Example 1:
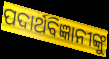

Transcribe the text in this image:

ପଦାର୍ଥବିଜ୍ଞାନୀଙ୍କୁ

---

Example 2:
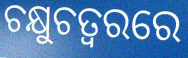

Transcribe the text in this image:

ଚକ୍ଷୁଚତ୍ୱରରେ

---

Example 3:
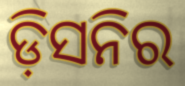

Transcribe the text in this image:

ଡ଼ିସନିର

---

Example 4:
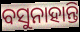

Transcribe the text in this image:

ବସୁନାହାନ୍ତି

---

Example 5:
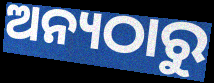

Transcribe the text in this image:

ଅନ୍ୟଠାରୁ